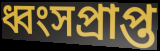
ধ্বংসপ্রাপ্ত